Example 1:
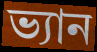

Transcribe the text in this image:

ভ্যান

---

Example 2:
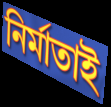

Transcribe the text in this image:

নিৰ্মাতাই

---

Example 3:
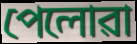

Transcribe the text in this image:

পেলোৱা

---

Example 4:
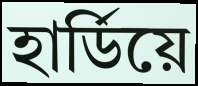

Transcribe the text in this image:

হাৰ্ডিয়ে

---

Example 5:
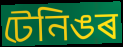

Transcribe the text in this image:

টেনিঙৰ